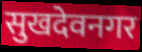
सुखदेवनगर